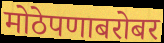
मोठेपणाबरोबर